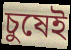
চুষেই